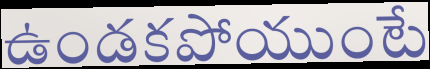
ఉండకపోయుంటే